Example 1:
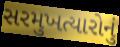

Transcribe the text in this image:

સરમુખત્યારોનું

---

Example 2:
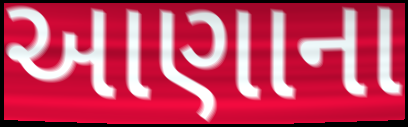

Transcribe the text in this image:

આણાના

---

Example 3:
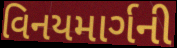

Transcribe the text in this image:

વિનયમાર્ગની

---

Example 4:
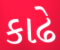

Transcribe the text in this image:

કાઢે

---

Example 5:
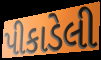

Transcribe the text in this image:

પીકાડેલી